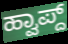
ಹ್ವಾಪ್ದ್